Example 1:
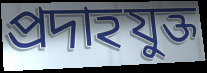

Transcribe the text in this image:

প্রদাহযুক্ত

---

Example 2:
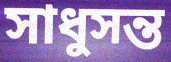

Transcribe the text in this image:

সাধুসন্ত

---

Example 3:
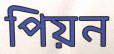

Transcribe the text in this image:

পিয়ন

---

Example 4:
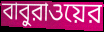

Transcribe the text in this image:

বাবুরাওয়ের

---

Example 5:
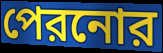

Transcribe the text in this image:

পেরনোর